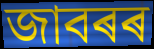
জাবৰৰ